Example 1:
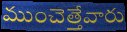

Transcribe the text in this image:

ముంచెత్తేవారు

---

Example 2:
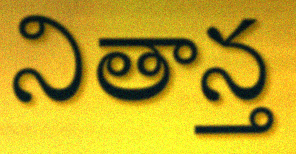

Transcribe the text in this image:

నితాన్త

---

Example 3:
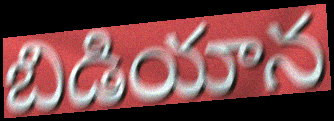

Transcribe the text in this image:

బిడియాన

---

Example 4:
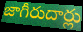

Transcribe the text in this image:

జాగీరుదార్లు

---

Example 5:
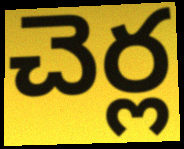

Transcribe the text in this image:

చెర్ల